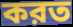
করত